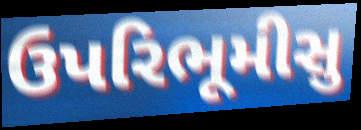
ઉપરિભૂમીસુ